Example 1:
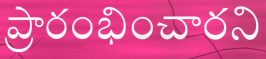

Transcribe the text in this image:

ప్రారంభించారని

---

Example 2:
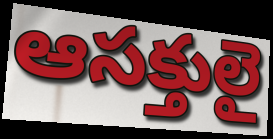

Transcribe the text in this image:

ఆసక్తులై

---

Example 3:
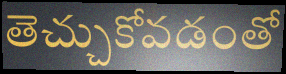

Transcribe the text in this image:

తెచ్చుకోవడంతో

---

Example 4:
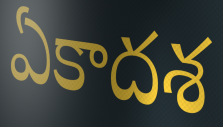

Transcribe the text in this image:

ఏకాదశ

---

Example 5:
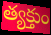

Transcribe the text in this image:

త్యక్తుం